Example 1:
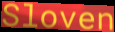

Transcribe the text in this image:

Sloven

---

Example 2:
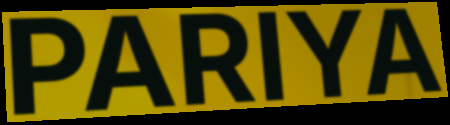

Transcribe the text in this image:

PARIYA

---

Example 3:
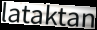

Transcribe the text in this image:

lataktan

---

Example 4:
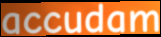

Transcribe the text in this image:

accudam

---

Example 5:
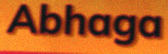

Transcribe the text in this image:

Abhaga